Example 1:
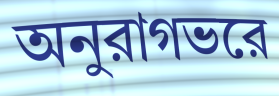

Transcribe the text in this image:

অনুরাগভরে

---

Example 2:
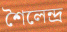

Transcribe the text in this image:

শৈলেন্দ্র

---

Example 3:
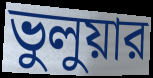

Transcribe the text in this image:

ভুলুয়ার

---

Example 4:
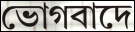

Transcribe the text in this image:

ভোগবাদে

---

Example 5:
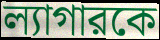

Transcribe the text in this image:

ল্যাগারকে